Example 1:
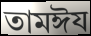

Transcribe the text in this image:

তামঈয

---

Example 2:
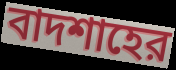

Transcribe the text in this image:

বাদশাহের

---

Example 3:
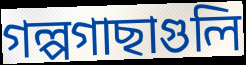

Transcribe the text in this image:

গল্পগাছাগুলি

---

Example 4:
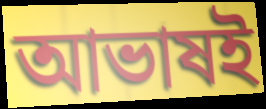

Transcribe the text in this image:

আভাষই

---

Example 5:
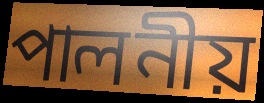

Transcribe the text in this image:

পালনীয়